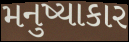
મનુષ્યાકાર